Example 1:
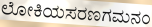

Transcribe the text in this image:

ಲೋಕಿಯಸರಣಗಮನಂ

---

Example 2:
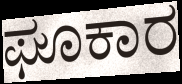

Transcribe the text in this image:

ಘೂಕಾರ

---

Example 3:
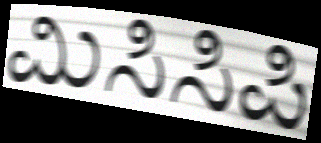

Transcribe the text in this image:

ಮಿಸಿಸಿಪಿ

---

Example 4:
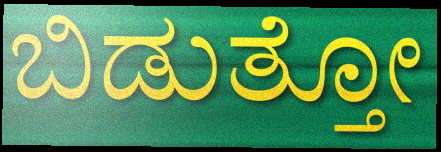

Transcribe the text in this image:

ಬಿಡುತ್ತೋ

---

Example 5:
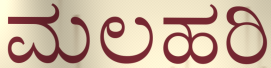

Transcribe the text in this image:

ಮಲಹರಿ